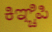
ಕಿಞ್ಚಿಪಿ